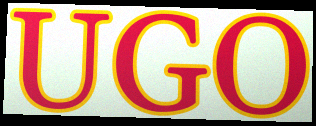
UGO